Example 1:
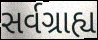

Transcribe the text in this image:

સર્વગ્રાહ્ય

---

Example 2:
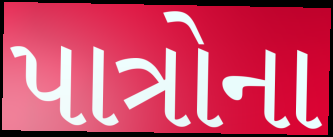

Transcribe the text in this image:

પાત્રોના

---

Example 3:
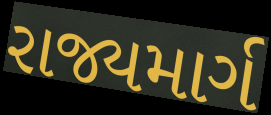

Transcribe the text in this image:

રાજ્યમાર્ગ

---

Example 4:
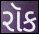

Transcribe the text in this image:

રૉક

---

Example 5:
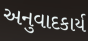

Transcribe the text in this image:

અનુવાદકાર્ય